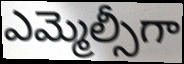
ఎమ్మెల్సీగా